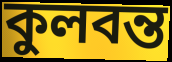
কুলবন্ত